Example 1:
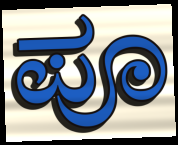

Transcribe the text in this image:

ಪೂ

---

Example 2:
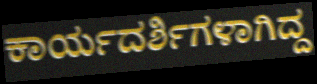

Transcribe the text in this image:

ಕಾರ್ಯದರ್ಶಿಗಳಾಗಿದ್ದ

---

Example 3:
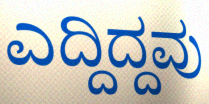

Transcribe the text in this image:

ಎದ್ದಿದ್ದವು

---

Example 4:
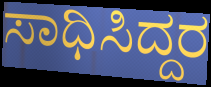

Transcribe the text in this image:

ಸಾಧಿಸಿದ್ದರ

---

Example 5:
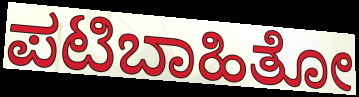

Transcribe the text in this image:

ಪಟಿಬಾಹಿತೋ